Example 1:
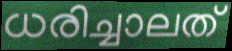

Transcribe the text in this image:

ധരിച്ചാലത്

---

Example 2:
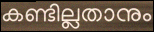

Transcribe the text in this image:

കണ്ടില്ലതാനും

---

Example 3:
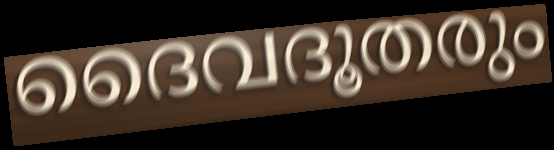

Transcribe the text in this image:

ദൈവദൂതരും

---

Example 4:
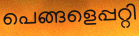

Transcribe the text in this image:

പെങ്ങളെപ്പറ്റി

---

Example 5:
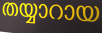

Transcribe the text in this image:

തയ്യാറായ